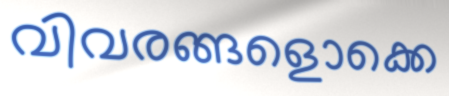
വിവരങ്ങളൊക്കെ